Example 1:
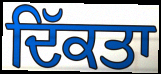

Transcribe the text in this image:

ਦਿੱਕਤਾ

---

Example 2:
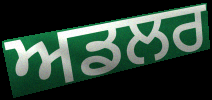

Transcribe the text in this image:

ਅਡਲਰ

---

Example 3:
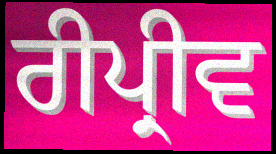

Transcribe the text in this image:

ਰੀਪ੍ਰੀਵ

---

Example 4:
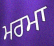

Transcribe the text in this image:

ਮਰਮਾ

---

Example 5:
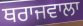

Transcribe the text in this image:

ਥਰਾਜਵਾਲਾ